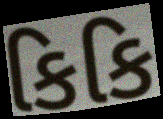
કિકિ